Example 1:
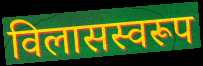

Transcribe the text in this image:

विलासस्वरूप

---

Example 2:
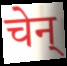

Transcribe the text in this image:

चेन्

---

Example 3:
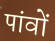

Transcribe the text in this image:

पांवों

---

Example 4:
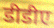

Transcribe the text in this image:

डीडीए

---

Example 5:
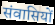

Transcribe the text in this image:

संवासियों